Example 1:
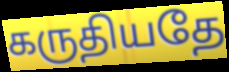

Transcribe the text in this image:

கருதியதே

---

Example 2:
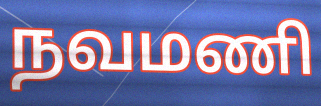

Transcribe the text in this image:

நவமணி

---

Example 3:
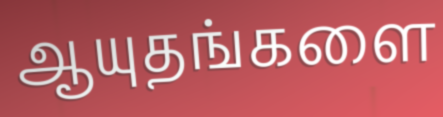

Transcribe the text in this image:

ஆயுதங்களை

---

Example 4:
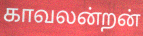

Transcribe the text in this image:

காவலன்றன்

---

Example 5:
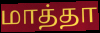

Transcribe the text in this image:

மாத்தா